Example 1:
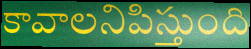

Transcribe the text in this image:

కావాలనిపిస్తుంది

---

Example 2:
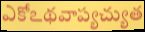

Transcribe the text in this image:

ఎకోఽథవాప్యచ్యుత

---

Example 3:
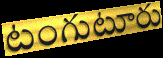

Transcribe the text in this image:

టంగుటూరు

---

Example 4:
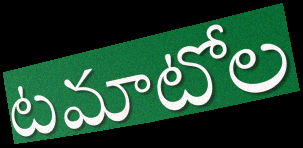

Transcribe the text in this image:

టమాటోల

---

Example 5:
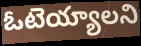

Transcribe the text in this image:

ఓటెయ్యాలని